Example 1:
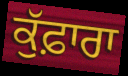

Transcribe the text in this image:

ਕੁੱਫ਼ਾਰਾ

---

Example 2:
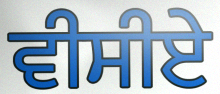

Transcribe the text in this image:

ਵੀਸੀਏ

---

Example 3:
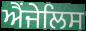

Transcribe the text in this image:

ਐਂਜੇਲਿਸ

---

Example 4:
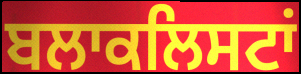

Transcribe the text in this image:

ਬਲਾਕਲਿਸਟਾਂ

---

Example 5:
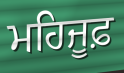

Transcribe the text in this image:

ਮਹਿਜੂਫ਼